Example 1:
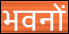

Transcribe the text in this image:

भवनों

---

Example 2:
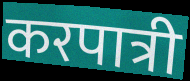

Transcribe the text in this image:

करपात्री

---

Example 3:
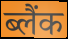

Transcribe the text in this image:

ब्लैंक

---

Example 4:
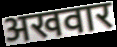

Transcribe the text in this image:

अखवार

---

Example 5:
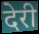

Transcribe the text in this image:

देरी